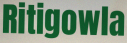
Ritigowla